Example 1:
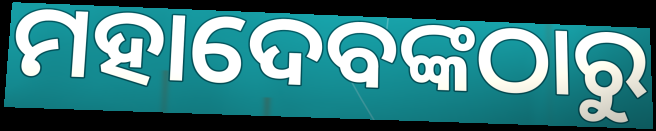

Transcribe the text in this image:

ମହାଦେବଙ୍କଠାରୁ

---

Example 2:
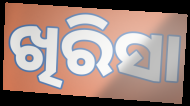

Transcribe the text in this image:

ଖିରିସା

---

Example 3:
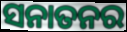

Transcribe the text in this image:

ସନାତନର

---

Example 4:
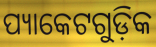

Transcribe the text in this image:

ପ୍ୟାକେଟଗୁଡ଼ିକ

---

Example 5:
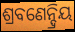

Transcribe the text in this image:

ଶ୍ରବଣେନ୍ଦ୍ରିୟ